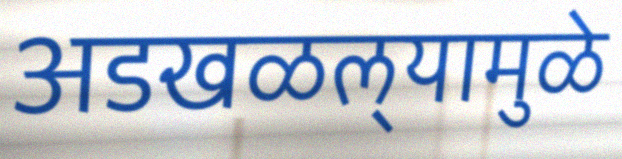
अडखळल्यामुळे